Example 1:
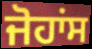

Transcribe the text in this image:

ਜੋਹਾਂਸ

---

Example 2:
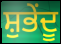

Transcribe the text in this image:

ਸ਼ੁਭੇਂਦੂ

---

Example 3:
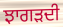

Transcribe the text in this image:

ਝਾਗੜਦੀ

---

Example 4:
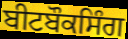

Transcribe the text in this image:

ਬੀਟਬੌਕਸਿੰਗ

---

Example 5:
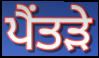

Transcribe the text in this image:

ਪੈਂਤੜੇ